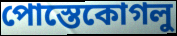
পোস্তেকোগলু